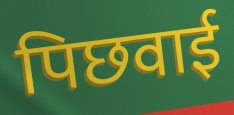
पिछवाई